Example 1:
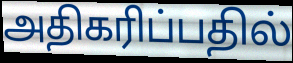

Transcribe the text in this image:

அதிகரிப்பதில்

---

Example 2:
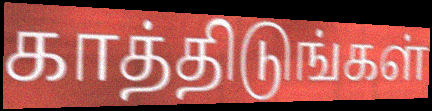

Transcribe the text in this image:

காத்திடுங்கள்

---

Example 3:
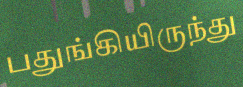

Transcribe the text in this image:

பதுங்கியிருந்து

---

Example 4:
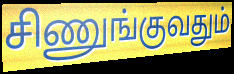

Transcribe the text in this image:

சிணுங்குவதும்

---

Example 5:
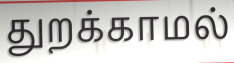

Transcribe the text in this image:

துறக்காமல்